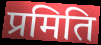
प्रमिति